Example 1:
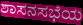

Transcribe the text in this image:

ಶಾಸನಸಭೆಯ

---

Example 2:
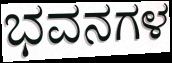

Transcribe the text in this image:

ಭವನಗಳ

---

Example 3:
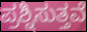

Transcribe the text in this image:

ಪ್ರಶ್ನಿಸುತ್ತವೆ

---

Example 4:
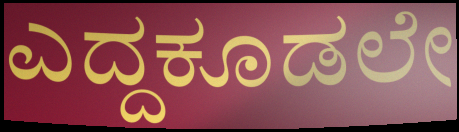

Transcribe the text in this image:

ಎದ್ದಕೂಡಲೇ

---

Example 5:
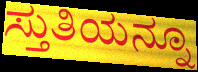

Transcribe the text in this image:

ಸ್ತುತಿಯನ್ನೂ